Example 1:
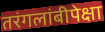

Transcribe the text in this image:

तरंगलांबीपेक्षा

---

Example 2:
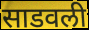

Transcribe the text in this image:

साडवली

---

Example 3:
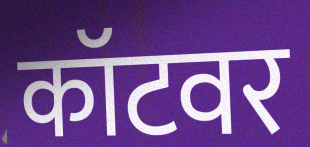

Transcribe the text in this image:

कॉटवर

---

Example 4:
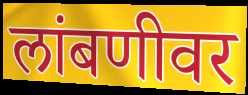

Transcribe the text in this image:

लांबणीवर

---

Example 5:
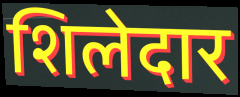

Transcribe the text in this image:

शिलेदार